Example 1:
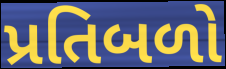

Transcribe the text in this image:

પ્રતિબળો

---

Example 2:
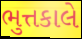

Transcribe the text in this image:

ભુત્તકાલે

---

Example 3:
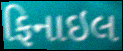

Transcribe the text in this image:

ફિનાઇલ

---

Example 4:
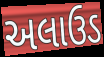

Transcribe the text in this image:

અલાઉડ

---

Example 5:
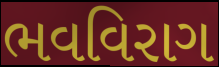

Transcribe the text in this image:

ભવવિરાગ